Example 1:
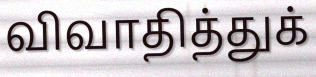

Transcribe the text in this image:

விவாதித்துக்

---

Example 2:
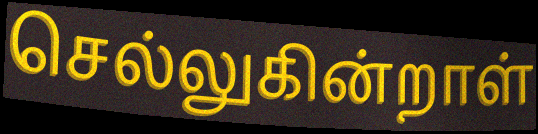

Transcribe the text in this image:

செல்லுகின்றாள்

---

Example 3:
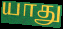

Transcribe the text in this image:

யாது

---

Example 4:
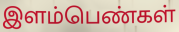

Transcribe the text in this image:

இளம்பெண்கள்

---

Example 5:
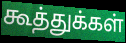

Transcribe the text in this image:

கூத்துக்கள்